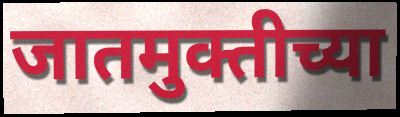
जातमुक्तीच्या